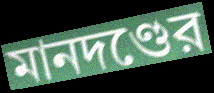
মানদণ্ডের